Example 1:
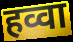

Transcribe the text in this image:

हव्वा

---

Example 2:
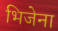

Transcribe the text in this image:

भिजेना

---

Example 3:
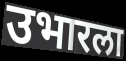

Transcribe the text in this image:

उभारला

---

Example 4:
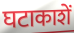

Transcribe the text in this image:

घटाकाशें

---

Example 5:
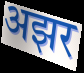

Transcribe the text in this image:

अझर